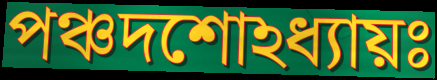
পঞ্চদশোঽধ্যায়ঃ